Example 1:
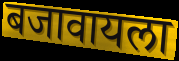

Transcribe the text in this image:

बजावायला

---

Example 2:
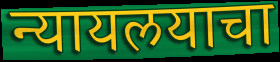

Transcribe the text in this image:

न्यायलयाचा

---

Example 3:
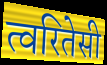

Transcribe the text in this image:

त्वरितेसी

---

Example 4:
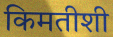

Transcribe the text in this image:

किमतीशी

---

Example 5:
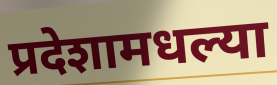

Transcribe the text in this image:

प्रदेशामधल्या